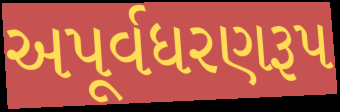
અપૂર્વધરણરૂપ